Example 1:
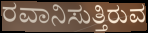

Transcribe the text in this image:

ರವಾನಿಸುತ್ತಿರುವ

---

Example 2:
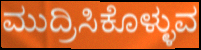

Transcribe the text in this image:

ಮುದ್ರಿಸಿಕೊಳ್ಳುವ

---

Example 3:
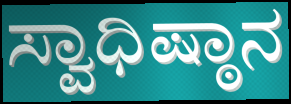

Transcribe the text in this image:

ಸ್ವಾಧಿಷ್ಠಾನ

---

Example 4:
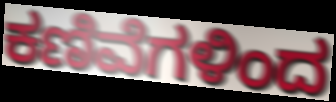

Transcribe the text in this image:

ಕಣಿವೆಗಳಿಂದ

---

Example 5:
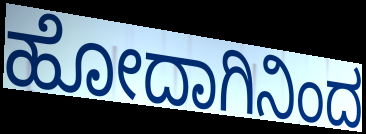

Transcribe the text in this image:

ಹೋದಾಗಿನಿಂದ